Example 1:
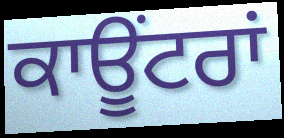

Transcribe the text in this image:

ਕਾਊਂਟਰਾਂ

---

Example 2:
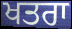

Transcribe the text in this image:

ਖਤਰਾ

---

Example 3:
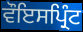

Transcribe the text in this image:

ਵੌਇਸਪ੍ਰਿੰਟ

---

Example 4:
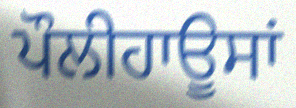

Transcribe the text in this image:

ਪੌਲੀਹਾਊਸਾਂ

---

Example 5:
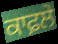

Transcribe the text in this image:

ਕਾਫ਼ਲੇ